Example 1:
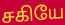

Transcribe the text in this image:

சகியே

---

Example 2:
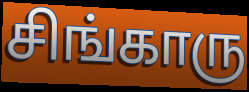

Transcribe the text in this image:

சிங்காரு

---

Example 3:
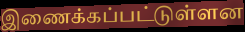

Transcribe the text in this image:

இணைக்கப்பட்டுள்ளன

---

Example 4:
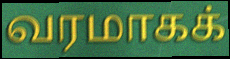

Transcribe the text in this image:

வரமாகக்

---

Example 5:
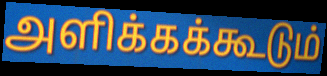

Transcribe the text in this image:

அளிக்கக்கூடும்